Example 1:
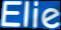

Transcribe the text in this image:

Elie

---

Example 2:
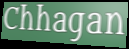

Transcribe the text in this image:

Chhagan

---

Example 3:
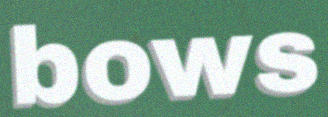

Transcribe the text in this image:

bows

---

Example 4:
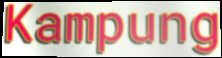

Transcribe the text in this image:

Kampung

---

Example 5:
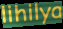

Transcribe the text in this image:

lihilya